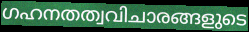
ഗഹനതത്വവിചാരങ്ങളുടെ